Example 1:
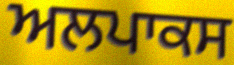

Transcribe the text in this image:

ਅਲਪਾਕਸ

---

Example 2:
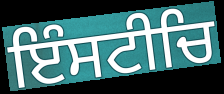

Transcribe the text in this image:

ਇੰਸਟੀਚਿ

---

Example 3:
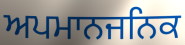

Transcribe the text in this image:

ਅਪਮਾਨਜਨਿਕ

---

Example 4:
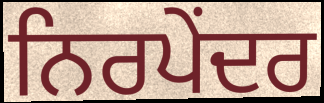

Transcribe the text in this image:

ਨਿਰਪੇਂਦਰ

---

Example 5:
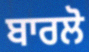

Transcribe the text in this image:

ਬਾਰਲੋ